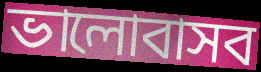
ভালোবাসব